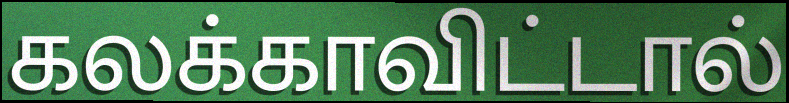
கலக்காவிட்டால்